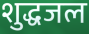
शुद्धजल